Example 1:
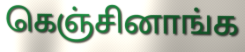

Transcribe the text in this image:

கெஞ்சினாங்க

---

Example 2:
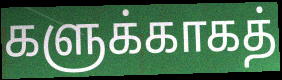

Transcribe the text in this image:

களுக்காகத்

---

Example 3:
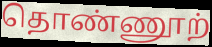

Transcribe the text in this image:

தொண்ணூற்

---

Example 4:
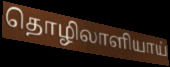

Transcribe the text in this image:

தொழிலாளியாய்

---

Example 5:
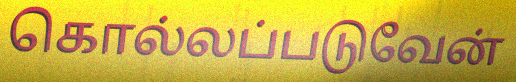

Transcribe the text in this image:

கொல்லப்படுவேன்